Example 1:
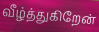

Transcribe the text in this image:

வீழ்த்துகிறேன்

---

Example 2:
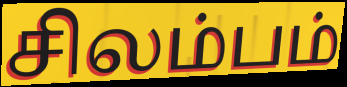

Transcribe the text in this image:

சிலம்பம்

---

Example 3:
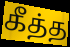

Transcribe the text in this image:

கீத்த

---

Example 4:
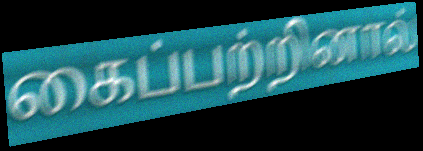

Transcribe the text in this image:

கைப்பற்றினால்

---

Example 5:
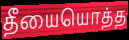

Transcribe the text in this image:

தீயையொத்த